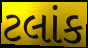
ટલાંક